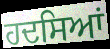
ਹਦਸਿਆਂ